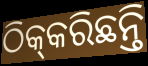
ଠିକ୍‌କରିଛନ୍ତି